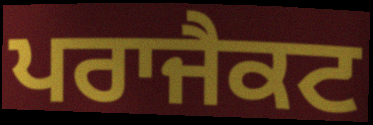
ਪਰਾਜੈਕਟ